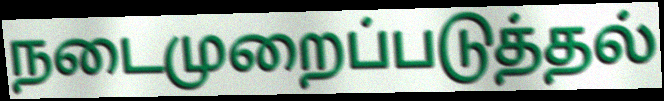
நடைமுறைப்படுத்தல்